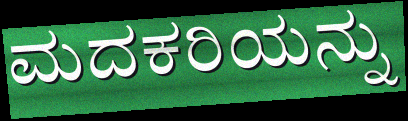
ಮದಕರಿಯನ್ನು